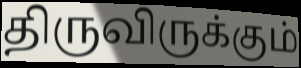
திருவிருக்கும்